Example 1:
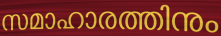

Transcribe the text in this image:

സമാഹാരത്തിനും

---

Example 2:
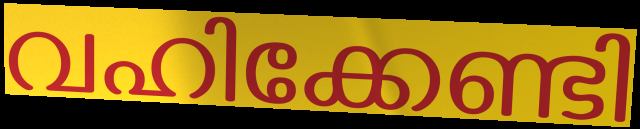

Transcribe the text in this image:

വഹിക്കേണ്ടി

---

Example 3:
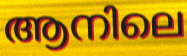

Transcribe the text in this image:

ആനിലെ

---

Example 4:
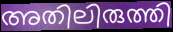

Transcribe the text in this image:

അതിലിരുത്തി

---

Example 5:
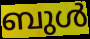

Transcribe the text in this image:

ബുൾ